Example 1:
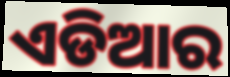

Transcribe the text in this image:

ଏଡିଆର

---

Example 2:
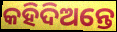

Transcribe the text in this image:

କହିଦିଅନ୍ତେ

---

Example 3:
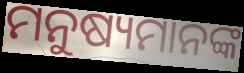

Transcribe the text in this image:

ମନୁଷ୍ୟମାନଙ୍କ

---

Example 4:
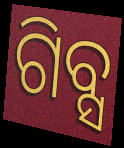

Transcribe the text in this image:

ଗିବ୍ସ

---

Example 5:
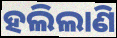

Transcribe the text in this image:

ହଲିଲାଣି